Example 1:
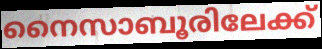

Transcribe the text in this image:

നൈസാബൂരിലേക്ക്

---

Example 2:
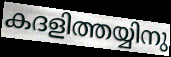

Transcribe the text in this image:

കദളിത്തയ്യിനു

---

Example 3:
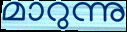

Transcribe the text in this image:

മാറുന്നു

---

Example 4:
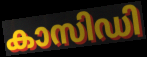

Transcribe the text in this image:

കാസിഡി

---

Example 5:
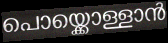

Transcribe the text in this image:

പൊയ്ക്കൊള്ളാൻ